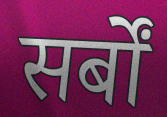
सर्बों